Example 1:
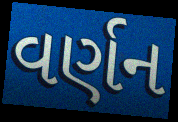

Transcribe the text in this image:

વર્ણન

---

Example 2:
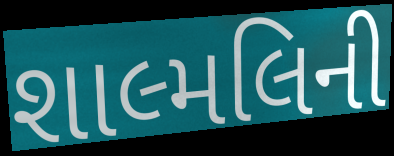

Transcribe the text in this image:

શાલ્મલિની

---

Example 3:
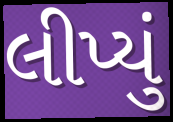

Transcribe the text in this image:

લીપ્યું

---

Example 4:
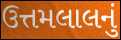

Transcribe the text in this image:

ઉત્તમલાલનું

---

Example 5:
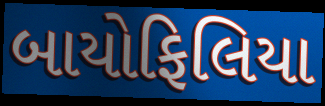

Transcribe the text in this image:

બાયોફિલિયા